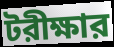
টরীক্ষার